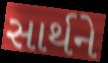
સાર્થને